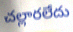
చల్లారలేదు